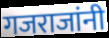
गजराजांनी